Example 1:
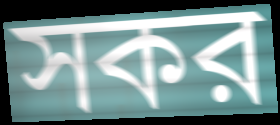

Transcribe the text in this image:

সকর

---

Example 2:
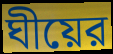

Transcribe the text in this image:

ঘীয়ের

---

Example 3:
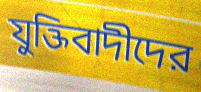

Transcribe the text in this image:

যুক্তিবাদীদের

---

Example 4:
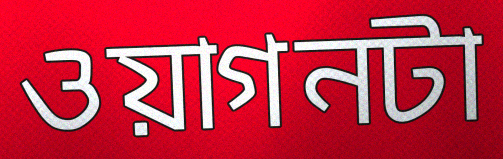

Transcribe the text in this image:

ওয়াগনটা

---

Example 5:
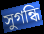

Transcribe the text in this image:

সুগন্ধি